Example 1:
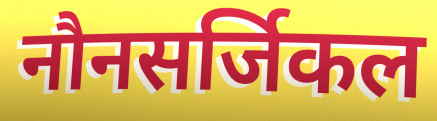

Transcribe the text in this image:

नौनसर्जिकल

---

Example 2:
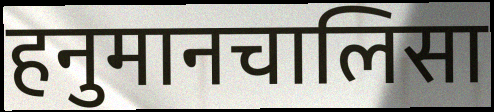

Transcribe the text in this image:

हनुमानचालिसा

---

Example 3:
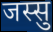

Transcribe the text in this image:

जस्सु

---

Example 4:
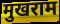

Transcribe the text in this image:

मुखराम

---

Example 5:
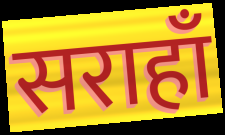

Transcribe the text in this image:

सराहाँ